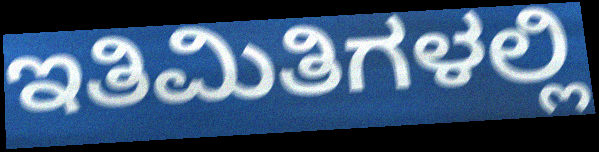
ಇತಿಮಿತಿಗಳಲ್ಲಿ